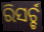
ରିସର୍ଚ୍ଚ